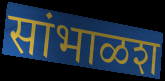
सांभाळश